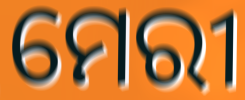
ମେରୀ